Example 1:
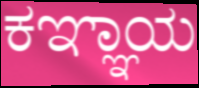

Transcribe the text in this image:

ಕಞ್ಞಾಯ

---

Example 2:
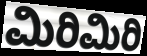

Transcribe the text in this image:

ಮಿರಿಮಿರಿ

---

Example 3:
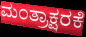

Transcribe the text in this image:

ಮಂತ್ರಾಕ್ಷರಕೆ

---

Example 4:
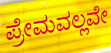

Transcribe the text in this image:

ಪ್ರೇಮವಲ್ಲವೇ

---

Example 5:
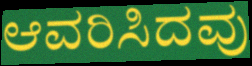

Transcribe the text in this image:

ಆವರಿಸಿದವು